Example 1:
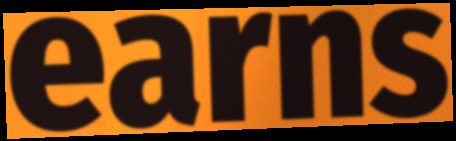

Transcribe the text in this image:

earns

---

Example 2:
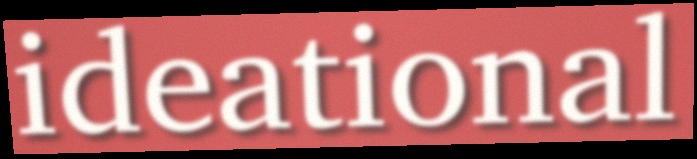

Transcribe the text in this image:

ideational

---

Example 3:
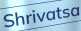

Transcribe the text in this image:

Shrivatsa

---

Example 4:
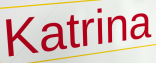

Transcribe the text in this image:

Katrina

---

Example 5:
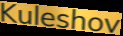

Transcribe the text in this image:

Kuleshov